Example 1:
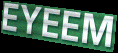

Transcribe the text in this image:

EYEEM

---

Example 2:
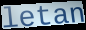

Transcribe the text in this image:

letan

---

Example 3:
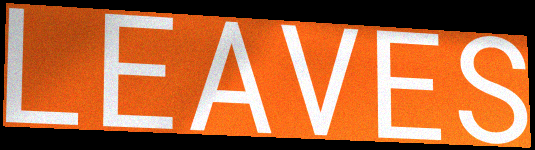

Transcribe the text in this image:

LEAVES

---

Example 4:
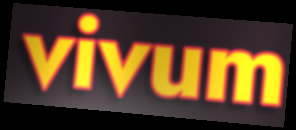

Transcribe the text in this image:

vivum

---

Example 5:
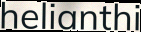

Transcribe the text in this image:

helianthi